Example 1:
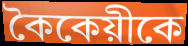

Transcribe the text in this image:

কৈকেয়ীকে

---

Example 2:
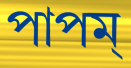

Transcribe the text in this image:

পাপম্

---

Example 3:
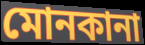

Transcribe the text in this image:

মোনকানা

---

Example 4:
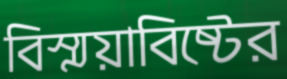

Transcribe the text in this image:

বিস্ময়াবিষ্টের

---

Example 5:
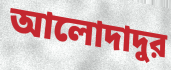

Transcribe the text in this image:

আলোদাদুর